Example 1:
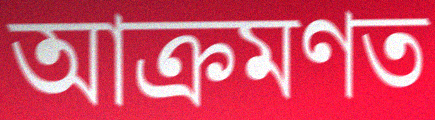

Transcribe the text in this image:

আক্ৰমণত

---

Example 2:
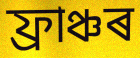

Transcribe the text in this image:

ফ্ৰাঞ্চৰ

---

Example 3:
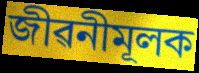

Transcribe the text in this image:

জীৱনীমূলক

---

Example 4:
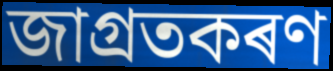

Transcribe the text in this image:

জাগ্ৰতকৰণ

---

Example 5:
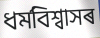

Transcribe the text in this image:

ধৰ্মবিশ্বাসৰ